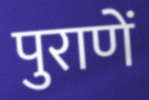
पुराणें